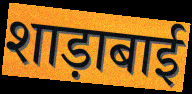
शाड़ाबाई